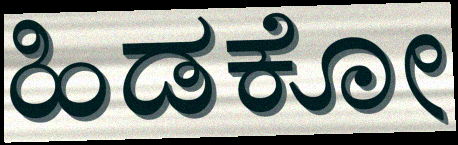
ಹಿಡಕೋ